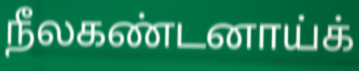
நீலகண்டனாய்க்